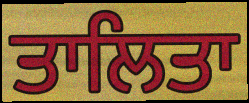
ਤਾਲਿਤਾ